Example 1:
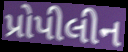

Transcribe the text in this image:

પ્રોપીલીન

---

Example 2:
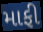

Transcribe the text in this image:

માફી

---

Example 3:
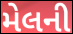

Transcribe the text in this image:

મેલની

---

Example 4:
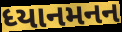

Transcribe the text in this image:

ધ્યાનમનન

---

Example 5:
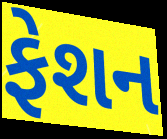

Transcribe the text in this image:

ફેશન